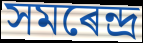
সমৰেন্দ্ৰ